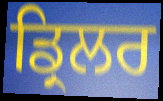
ਡ੍ਰਿਲਰ